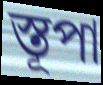
স্তূপা